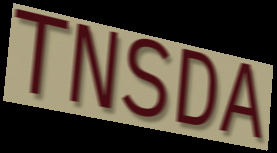
TNSDA